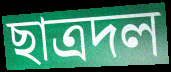
ছাত্রদল